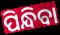
ପିନ୍ଧିବା